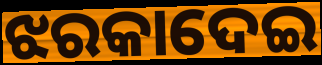
ଝରକାଦେଇ